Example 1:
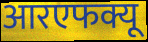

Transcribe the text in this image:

आरएफक्यू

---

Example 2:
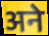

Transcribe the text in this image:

अने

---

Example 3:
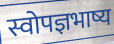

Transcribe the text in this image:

स्वोपज्ञभाष्य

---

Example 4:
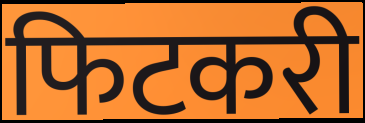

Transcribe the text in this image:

फिटकरी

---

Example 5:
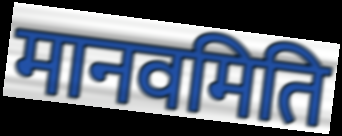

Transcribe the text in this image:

मानवमिति